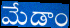
మేడాం